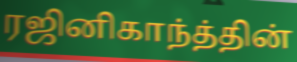
ரஜினிகாந்த்தின்